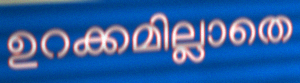
ഉറക്കമില്ലാതെ